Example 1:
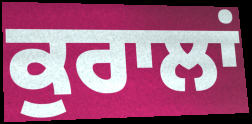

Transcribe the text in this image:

ਕੁਰਾਲਾਂ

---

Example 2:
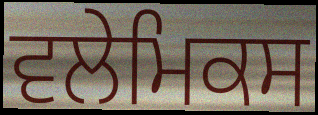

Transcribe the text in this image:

ਵਲੇਮਿਕਸ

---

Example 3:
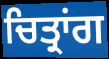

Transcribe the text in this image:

ਚਿਤ੍ਰਾਂਗ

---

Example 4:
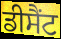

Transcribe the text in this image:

ਡੀਸੈਂਟ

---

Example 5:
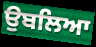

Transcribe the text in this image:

ਉਬਲਿਆ